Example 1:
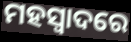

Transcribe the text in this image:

ମହସ୍ୱାଦରେ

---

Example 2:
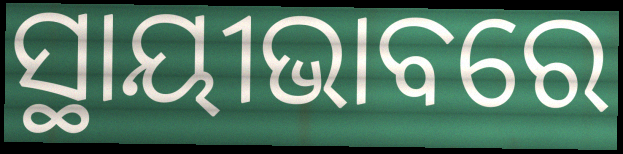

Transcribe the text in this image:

ସ୍ଥାୟୀଭାବରେ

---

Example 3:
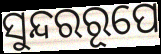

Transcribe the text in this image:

ସୁନ୍ଦରରୂପେ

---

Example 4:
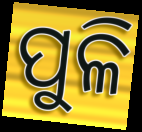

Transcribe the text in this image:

ପୁଳି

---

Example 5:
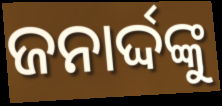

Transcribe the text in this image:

ଜନାର୍ଦ୍ଦଙ୍କୁ